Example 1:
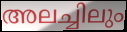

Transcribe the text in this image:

അലച്ചിലും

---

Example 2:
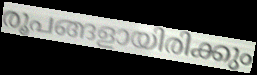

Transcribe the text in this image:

രൂപങ്ങളായിരിക്കും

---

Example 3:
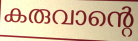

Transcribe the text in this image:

കരുവാന്റെ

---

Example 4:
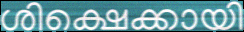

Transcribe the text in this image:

ശിക്ഷെക്കായി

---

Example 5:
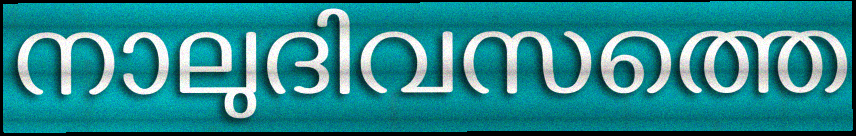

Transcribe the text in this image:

നാലുദിവസത്തെ